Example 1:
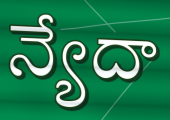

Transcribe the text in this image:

న్యేదా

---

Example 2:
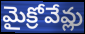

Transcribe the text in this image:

మైక్రోవేవ్లు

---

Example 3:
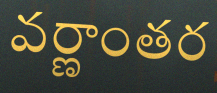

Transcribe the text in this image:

వర్ణాంతర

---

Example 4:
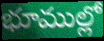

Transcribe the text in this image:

భూముల్లో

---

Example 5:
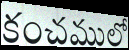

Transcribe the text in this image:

కంచములో